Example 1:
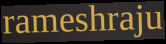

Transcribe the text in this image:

rameshraju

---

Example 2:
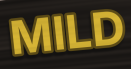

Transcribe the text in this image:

MILD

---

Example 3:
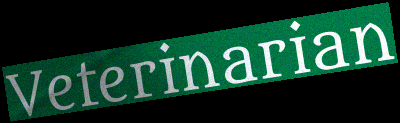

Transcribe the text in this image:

Veterinarian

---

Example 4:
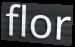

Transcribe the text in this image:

flor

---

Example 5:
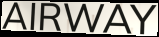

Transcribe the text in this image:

AIRWAY